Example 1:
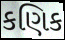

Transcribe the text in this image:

કણિક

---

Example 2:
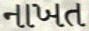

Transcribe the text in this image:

નાખત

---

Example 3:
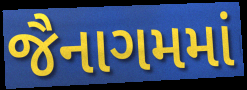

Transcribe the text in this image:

જૈનાગમમાં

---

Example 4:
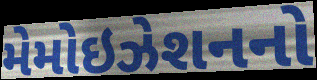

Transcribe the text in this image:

મેમોઇઝેશનનો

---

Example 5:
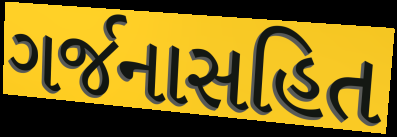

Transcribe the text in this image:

ગર્જનાસહિત